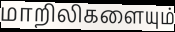
மாறிலிகளையும்